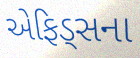
એફિડ્સના